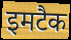
इमटैक